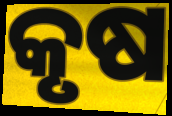
କୃଷ